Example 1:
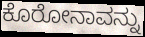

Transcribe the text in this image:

ಕೊರೋನಾವನ್ನು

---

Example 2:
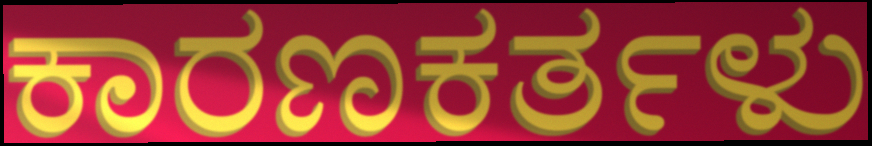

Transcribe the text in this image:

ಕಾರಣಕರ್ತಳು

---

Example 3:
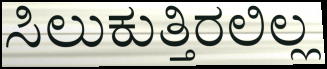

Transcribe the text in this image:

ಸಿಲುಕುತ್ತಿರಲಿಲ್ಲ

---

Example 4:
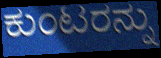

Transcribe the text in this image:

ಕುಂಟರನ್ನು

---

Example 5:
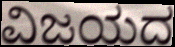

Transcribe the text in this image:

ವಿಜಯದ